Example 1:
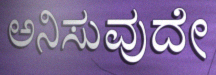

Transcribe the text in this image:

ಅನಿಸುವುದೇ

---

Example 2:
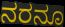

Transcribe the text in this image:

ನರನೂ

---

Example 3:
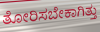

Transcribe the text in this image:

ತೋರಿಸಬೇಕಾಗಿತ್ತು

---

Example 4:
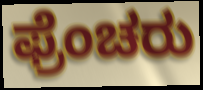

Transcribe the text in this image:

ಫ್ರೆಂಚರು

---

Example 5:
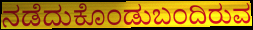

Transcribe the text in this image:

ನಡೆದುಕೊಂಡುಬಂದಿರುವ